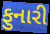
ફુનારી